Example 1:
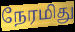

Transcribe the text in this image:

நேரமிது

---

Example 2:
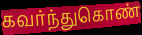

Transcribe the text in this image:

கவர்ந்துகொண்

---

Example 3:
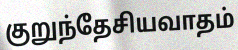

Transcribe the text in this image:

குறுந்தேசியவாதம்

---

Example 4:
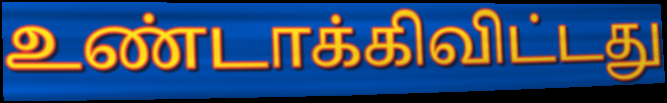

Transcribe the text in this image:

உண்டாக்கிவிட்டது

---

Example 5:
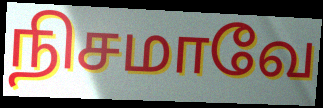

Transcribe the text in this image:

நிசமாவே